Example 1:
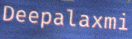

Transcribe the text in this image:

Deepalaxmi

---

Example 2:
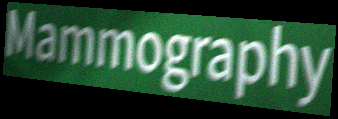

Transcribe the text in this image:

Mammography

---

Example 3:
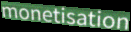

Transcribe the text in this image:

monetisation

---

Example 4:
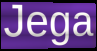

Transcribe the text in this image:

Jega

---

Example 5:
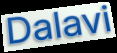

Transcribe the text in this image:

Dalavi